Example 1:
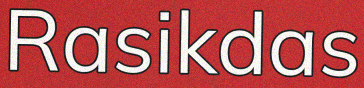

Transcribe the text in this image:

Rasikdas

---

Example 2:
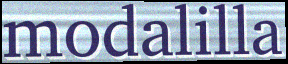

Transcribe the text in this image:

modalilla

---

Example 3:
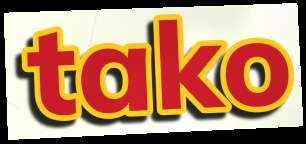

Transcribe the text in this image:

tako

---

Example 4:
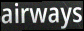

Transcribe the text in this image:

airways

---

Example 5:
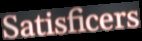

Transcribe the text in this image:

Satisficers